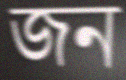
জন